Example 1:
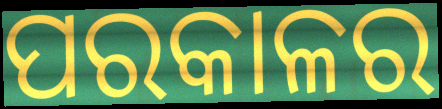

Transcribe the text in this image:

ପରକାଳର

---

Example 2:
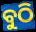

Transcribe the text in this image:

ବୁଠି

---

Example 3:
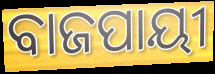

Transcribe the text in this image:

ବାଜପାୟୀ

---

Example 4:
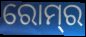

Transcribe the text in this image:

ରୋମ୍‌ର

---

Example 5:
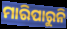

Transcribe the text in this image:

ମାରିପାରୁନି